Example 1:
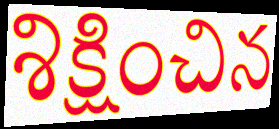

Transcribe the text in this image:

శిక్షించిన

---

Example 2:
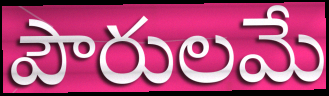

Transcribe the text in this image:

పౌరులమే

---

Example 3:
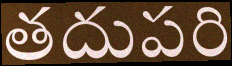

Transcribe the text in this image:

తదుపరి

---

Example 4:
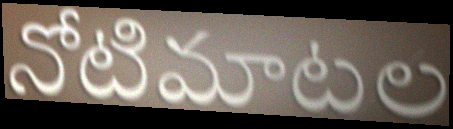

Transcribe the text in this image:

నోటిమాటల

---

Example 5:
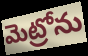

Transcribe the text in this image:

మెట్రోను